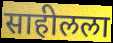
साहीलला